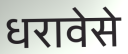
धरावेसे